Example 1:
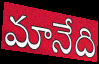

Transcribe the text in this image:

మానేది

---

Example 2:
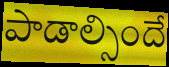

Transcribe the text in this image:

పాడాల్సిందే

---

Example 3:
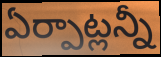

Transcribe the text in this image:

ఏర్పాట్లన్నీ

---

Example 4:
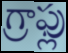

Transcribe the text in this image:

గ్రాఫ్లు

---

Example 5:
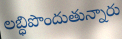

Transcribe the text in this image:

లబ్ధిపొందుతున్నారు